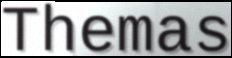
Themas